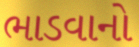
ભાડવાનો